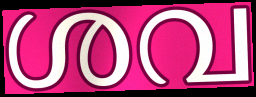
ശവ